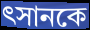
ৎসানকে